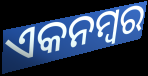
ଏକନମ୍ବର